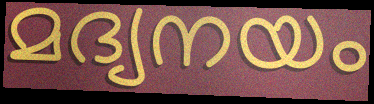
മദ്യനയം